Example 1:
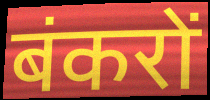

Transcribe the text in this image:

बंकरों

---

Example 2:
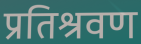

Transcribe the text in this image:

प्रतिश्रवण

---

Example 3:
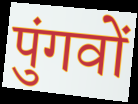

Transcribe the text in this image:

पुंगवों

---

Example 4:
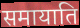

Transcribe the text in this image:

समायाति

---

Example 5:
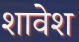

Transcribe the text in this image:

शावेश